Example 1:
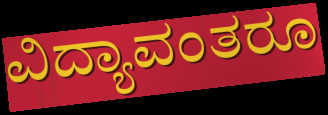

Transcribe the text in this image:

ವಿದ್ಯಾವಂತರೂ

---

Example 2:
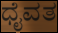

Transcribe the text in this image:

ಧೈವತ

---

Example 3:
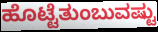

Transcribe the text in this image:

ಹೊಟ್ಟೆತುಂಬುವಷ್ಟು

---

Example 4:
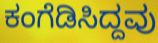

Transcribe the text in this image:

ಕಂಗೆಡಿಸಿದ್ದವು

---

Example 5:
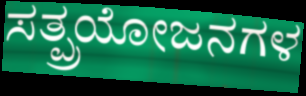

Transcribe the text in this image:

ಸತ್ಪ್ರಯೋಜನಗಳ